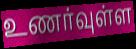
உணர்வுள்ள